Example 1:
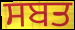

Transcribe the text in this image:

ਸਬਤ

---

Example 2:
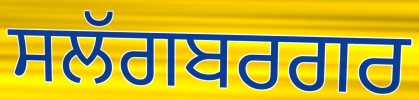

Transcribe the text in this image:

ਸਲੱਗਬਰਗਰ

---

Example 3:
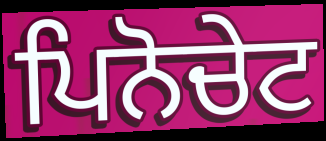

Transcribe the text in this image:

ਪਿਨੋਚੇਟ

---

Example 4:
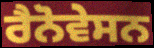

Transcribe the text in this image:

ਰੈਨੋਵੇਸਨ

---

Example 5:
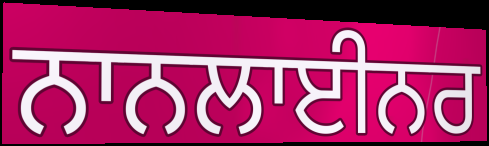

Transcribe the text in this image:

ਨਾਨਲਾਈਨਰ